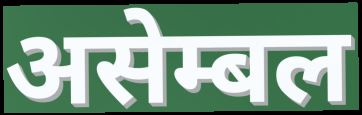
असेम्बल